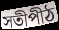
সতীপীঠ